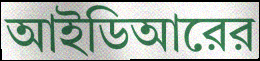
আইডিআরের